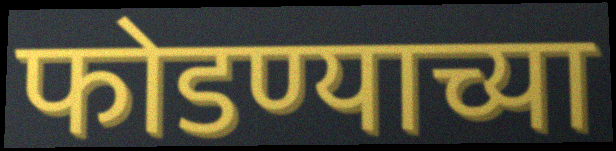
फोडण्याच्या